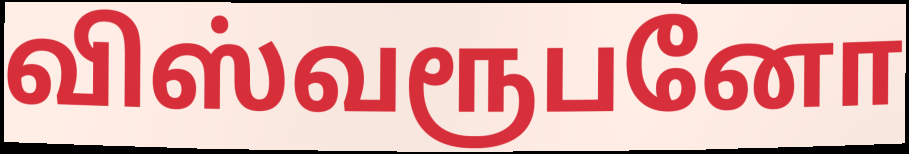
விஸ்வரூபனோ